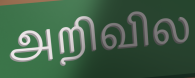
அறிவில